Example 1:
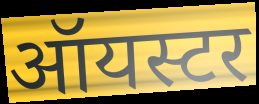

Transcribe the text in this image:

ऑयस्टर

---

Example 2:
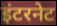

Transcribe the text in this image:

इंटरनेट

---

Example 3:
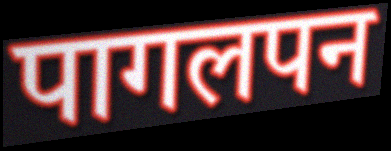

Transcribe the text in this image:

पागलपन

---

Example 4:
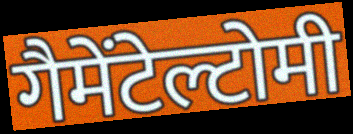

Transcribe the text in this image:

गैमेंटेल्टोमी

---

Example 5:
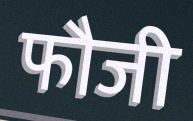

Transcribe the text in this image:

फौजी